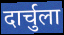
दार्चुला